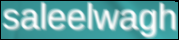
saleelwagh